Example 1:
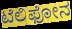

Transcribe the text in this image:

ಟೆಲಿಫೋನ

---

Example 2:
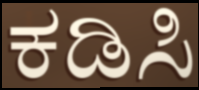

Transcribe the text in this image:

ಕಡಿಸಿ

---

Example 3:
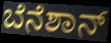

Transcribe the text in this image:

ಬೆನೆಶಾನ್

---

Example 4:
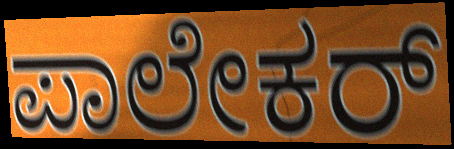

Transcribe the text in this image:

ಪಾಲೇಕರ್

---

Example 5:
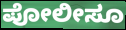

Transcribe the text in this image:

ಪೋಲೀಸೂ